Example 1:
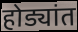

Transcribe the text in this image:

होड्यांत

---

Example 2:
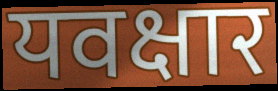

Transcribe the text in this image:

यवक्षार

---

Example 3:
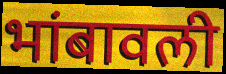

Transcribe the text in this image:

भांबावली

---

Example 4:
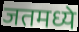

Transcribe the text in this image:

जतमध्ये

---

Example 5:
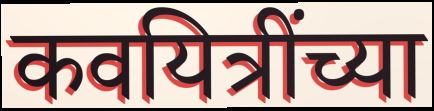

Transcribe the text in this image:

कवयित्रींच्या